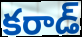
కరాడ్